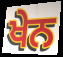
ਖੇਨ